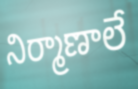
నిర్మాణాలే